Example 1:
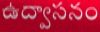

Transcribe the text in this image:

ఉద్వాసనం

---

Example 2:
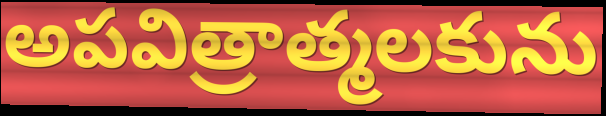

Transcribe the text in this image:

అపవిత్రాత్మలకును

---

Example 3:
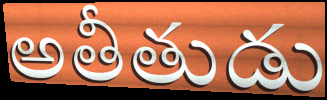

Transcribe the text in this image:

అతీతుడు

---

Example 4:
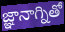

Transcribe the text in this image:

జ్ఞానాగ్నితో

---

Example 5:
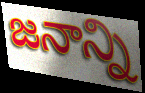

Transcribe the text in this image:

జనాన్ని